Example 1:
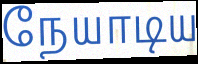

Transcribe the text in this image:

நேயாடிய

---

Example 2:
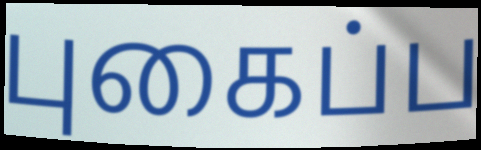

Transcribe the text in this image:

புகைப்ப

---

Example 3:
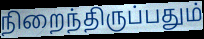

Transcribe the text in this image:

நிறைந்திருப்பதும்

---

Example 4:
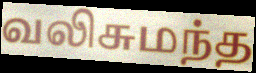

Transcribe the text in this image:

வலிசுமந்த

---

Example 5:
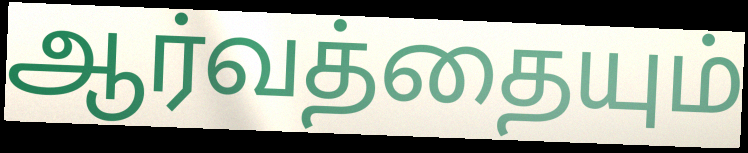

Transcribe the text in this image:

ஆர்வத்தையும்